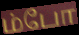
ம்போ